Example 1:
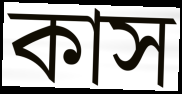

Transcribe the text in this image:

কাস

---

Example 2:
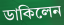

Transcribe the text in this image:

ডাকিলেন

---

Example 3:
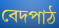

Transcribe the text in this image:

বেদপাঠ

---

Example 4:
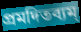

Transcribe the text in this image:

প্রমদিতব্যম্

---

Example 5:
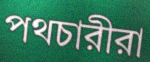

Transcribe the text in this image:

পথচারীরা